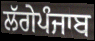
ਲੱਗੇਪੰਜਾਬ